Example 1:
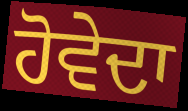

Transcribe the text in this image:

ਹੋਵੇਦਾ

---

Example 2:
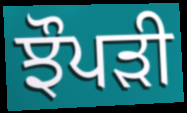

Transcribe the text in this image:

ਝੌਪੜੀ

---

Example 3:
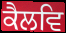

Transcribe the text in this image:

ਕੈਲਵਿ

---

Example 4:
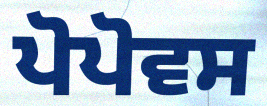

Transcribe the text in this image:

ਪੋਪੋਵਸ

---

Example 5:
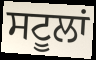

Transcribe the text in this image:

ਸਟੂਲਾਂ